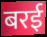
बरई